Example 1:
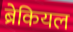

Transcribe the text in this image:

ब्रेकियल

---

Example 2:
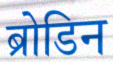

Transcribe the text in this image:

ब्रोडिन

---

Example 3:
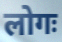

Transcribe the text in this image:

लोगः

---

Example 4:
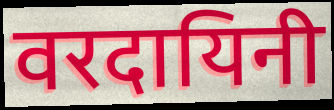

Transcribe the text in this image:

वरदायिनी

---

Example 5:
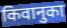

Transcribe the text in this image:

किवानुका